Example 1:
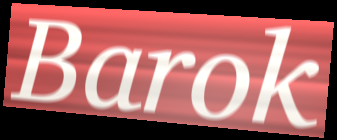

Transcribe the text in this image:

Barok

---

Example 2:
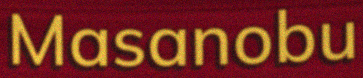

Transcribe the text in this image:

Masanobu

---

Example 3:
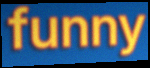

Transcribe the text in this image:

funny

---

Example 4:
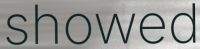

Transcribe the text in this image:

showed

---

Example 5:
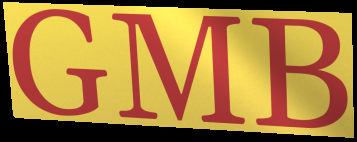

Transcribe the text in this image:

GMB